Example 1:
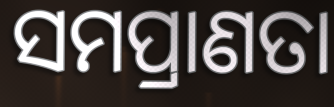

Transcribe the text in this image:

ସମପ୍ରାଣତା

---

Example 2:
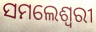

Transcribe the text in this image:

ସମଲେଶ୍ୱରୀ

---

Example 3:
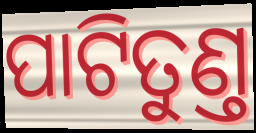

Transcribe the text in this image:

ପାଟିତୁଣ୍ତ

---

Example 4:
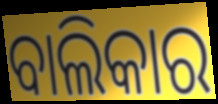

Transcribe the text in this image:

ବାଲିକାର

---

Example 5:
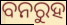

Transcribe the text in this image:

ବନରୁହ